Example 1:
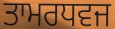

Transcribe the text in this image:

ਤਾਮਰਧਵਜ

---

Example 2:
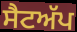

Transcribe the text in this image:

ਸੈਟਅੱਪ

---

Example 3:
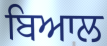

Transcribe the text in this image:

ਬਿਆਲ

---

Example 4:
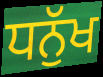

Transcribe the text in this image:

ਧਨੁੱਖ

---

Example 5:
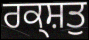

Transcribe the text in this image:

ਰਕ੍ਸ਼ਤੁ